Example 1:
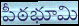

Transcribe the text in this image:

పీఠభూమి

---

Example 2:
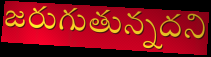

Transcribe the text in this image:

జరుగుతున్నదని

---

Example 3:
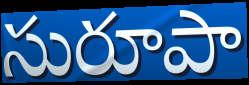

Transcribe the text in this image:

సురూపా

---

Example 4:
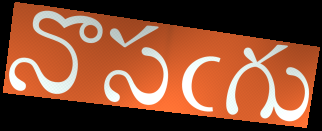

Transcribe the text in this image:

నొసఁగు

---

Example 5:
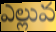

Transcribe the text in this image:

ఎల్లువ